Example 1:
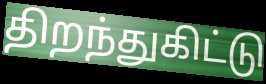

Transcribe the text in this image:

திறந்துகிட்டு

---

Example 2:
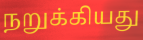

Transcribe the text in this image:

நறுக்கியது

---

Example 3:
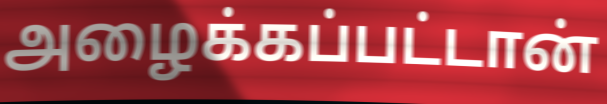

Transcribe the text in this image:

அழைக்கப்பட்டான்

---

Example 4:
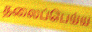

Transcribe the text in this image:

தலைப்பெய்ய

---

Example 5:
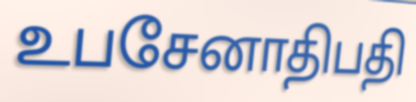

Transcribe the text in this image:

உபசேனாதிபதி